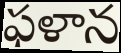
ఫళాన